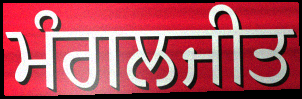
ਮੰਗਲਜੀਤ